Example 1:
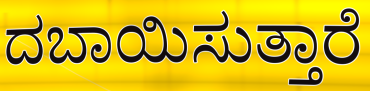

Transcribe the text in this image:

ದಬಾಯಿಸುತ್ತಾರೆ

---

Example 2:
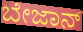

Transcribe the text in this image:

ಬೇಜಾನ್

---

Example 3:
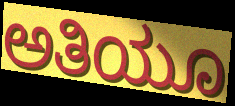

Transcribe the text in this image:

ಅತಿಯೂ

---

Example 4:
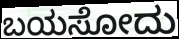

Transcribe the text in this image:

ಬಯಸೋದು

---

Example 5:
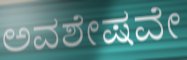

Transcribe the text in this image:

ಅವಶೇಷವೇ